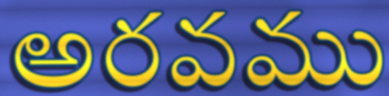
అరవము